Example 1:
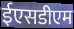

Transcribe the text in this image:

ईएसडीएम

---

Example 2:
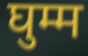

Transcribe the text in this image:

घुम्म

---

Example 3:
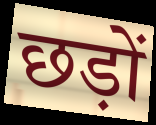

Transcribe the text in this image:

छड़ों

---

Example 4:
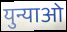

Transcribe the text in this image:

युन्याओ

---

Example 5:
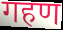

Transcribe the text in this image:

गहण